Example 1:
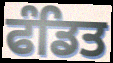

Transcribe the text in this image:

ਫੰਡਿਤ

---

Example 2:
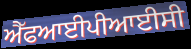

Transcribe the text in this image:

ਐੱਫਆਈਪੀਆਈਸੀ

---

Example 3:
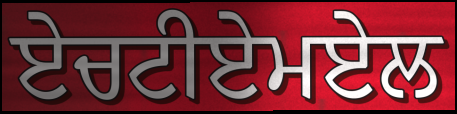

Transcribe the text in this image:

ਏਚਟੀਏਮਏਲ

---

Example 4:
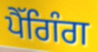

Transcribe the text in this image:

ਪੈੱਗਿੰਗ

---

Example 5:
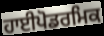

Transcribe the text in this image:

ਹਾਈਪੋਡਰਮਿਕ